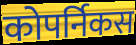
कोपर्निकस